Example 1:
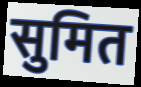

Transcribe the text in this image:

सुमित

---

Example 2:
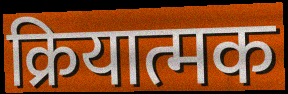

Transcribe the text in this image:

क्रियात्मक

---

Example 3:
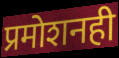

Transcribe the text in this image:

प्रमोशनही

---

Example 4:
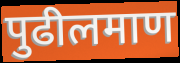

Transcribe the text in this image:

पुढीलमाण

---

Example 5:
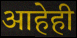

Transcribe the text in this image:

आहेही